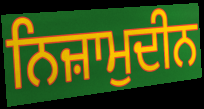
ਨਿਜ਼ਾਮੁਦੀਨ